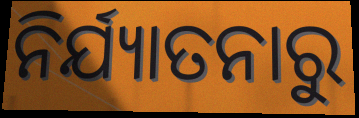
ନିର୍ଯ୍ୟାତନାରୁ